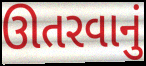
ઊતરવાનું